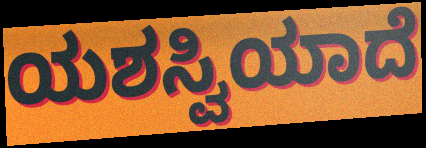
ಯಶಸ್ವಿಯಾದೆ